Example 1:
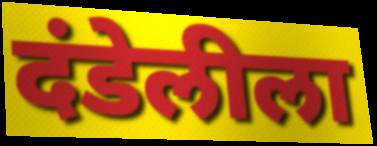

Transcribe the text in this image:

दंडेलीला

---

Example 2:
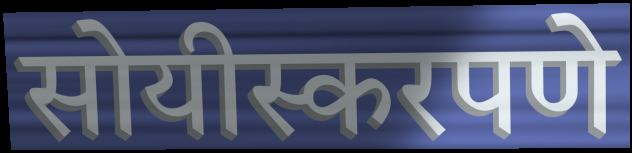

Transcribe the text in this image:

सोयीस्करपणे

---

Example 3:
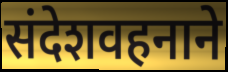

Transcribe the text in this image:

संदेशवहनाने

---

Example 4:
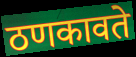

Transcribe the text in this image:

ठणकावते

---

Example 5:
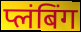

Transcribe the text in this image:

प्लंबिंग